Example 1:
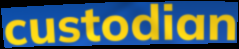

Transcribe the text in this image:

custodian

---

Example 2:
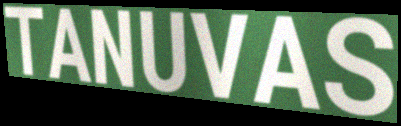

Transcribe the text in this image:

TANUVAS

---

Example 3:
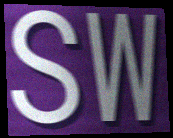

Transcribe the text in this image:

SW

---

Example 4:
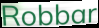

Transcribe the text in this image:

Robbar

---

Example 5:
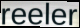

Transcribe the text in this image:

reeler